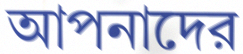
আপনাদের